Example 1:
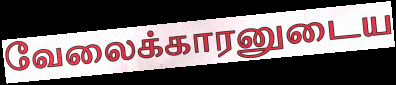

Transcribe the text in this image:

வேலைக்காரனுடைய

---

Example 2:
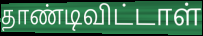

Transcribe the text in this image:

தாண்டிவிட்டாள்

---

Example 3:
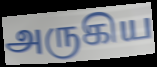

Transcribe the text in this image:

அருகிய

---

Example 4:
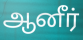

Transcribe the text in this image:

ஆனீர்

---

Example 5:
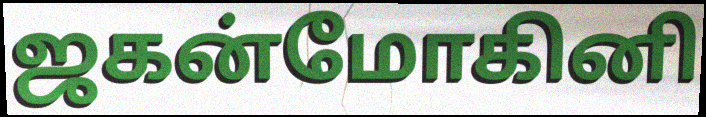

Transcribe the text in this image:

ஜகன்மோகினி